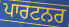
ਪਾਰਟਨਰ